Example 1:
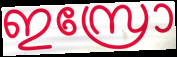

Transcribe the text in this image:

ഇസ്രോ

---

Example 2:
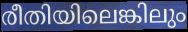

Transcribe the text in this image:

രീതിയിലെങ്കിലും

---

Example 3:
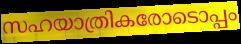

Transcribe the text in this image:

സഹയാത്രികരോടൊപ്പം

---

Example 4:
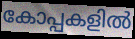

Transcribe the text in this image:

കോപ്പകളിൽ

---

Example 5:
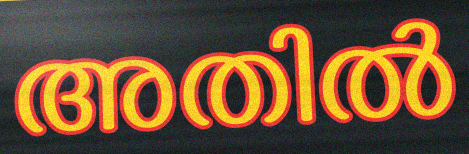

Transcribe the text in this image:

അതിൽ